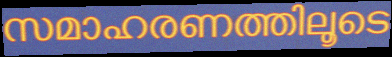
സമാഹരണത്തിലൂടെ